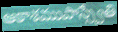
ఆకాశముపాస్స్వేతి